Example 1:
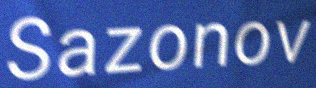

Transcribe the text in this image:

Sazonov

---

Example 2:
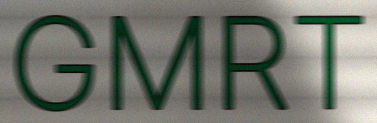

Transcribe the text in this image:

GMRT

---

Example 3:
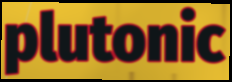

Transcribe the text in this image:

plutonic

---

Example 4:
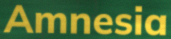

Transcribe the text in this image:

Amnesia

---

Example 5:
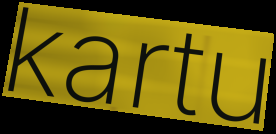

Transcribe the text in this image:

kartu